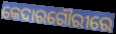
କେଦାରଗୌରୀରେ